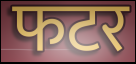
फटर